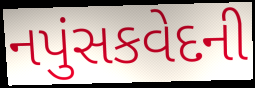
નપુંસકવેદની